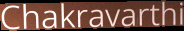
Chakravarthi